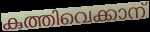
കുത്തിവെക്കാന്